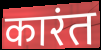
कारंत